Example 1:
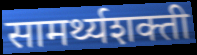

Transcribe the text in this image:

सामर्थ्यशक्ती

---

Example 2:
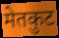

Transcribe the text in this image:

मेतकुट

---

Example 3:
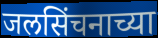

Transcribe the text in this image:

जलसिंचनाच्या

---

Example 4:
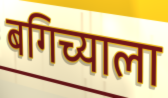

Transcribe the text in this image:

बगिच्याला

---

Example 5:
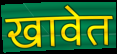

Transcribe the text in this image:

खावेत